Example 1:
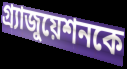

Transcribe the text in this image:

গ্র্যাজুয়েশনকে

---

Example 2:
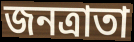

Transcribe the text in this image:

জনত্রাতা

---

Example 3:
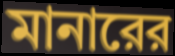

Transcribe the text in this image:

মানারের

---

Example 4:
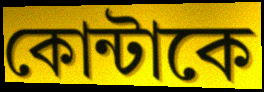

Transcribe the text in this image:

কোন্টাকে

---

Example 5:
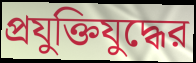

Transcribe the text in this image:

প্রযুক্তিযুদ্ধের